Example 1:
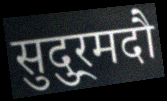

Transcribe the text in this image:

सुदुर्मदौ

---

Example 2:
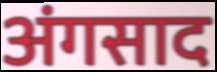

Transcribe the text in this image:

अंगसाद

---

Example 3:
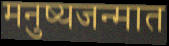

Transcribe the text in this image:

मनुष्यजन्मात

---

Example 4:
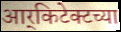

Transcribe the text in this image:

आर्किटेक्टच्या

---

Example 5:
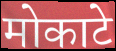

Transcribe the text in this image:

मोकाटे